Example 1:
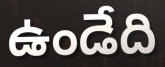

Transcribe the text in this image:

ఉండేది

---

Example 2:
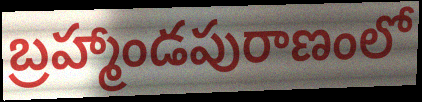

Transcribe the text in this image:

బ్రహ్మాండపురాణంలో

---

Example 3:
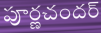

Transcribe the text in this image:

పూర్ణచందర్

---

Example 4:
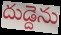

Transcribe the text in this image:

దుడ్దెను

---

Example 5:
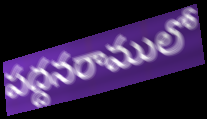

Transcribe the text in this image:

పద్దనరాములో